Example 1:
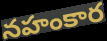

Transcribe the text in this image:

నహంకార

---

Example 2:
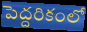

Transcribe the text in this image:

పెద్దరికంలో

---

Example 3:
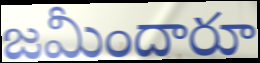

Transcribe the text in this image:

జమీందారూ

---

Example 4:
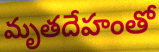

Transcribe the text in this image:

మృతదేహంతో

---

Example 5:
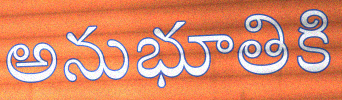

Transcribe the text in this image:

అనుభూతికి